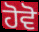
ਹੋਵੋ